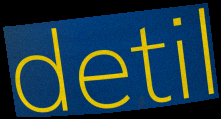
detil